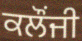
ਕਲੌਂਜੀ